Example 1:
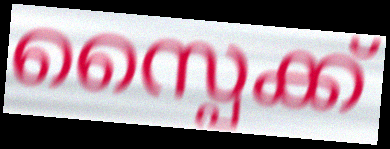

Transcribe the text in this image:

സ്പൈക്ക്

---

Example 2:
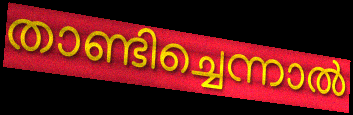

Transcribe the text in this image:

താണ്ടിച്ചെന്നാൽ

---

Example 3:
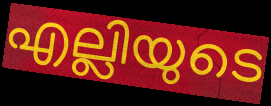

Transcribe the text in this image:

എല്ലിയുടെ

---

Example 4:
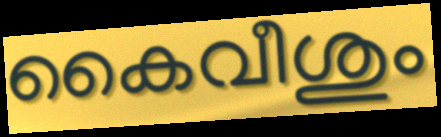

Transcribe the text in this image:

കൈവീശും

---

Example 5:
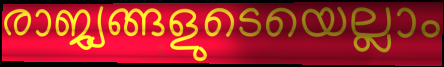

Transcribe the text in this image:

രാജ്യങ്ങളുടെയെല്ലാം